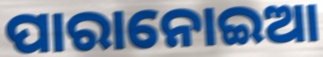
ପାରାନୋଇଆ